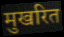
मुखरित